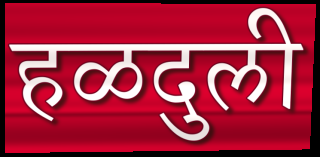
हळदुली